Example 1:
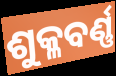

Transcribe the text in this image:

ଶୁକ୍ଳବର୍ଣ୍ଣ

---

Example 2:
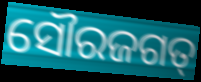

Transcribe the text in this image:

ସୌରଜଗତ୍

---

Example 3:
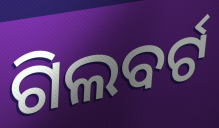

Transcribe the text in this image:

ଗିଲବର୍ଟ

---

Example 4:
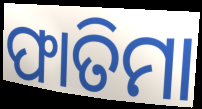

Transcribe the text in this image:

ଫାତିମା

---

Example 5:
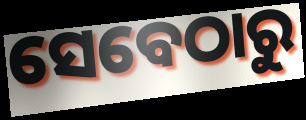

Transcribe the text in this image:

ସେବେଠାରୁ